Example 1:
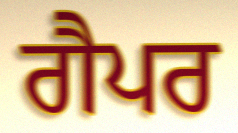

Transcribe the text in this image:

ਗੈਪਰ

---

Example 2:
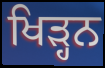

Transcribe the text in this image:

ਖਿੜ੍ਹਨ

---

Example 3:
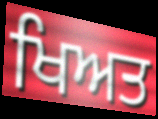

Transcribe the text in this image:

ਖਿਅਤ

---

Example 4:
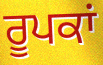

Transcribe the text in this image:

ਰੂਪਕਾਂ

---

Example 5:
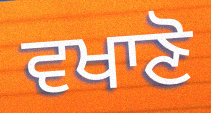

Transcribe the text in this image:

ਵਖਾਣੋ